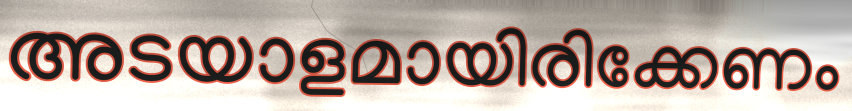
അടയാളമായിരിക്കേണം